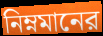
নিম্নমানের